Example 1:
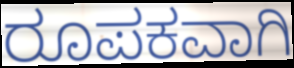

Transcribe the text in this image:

ರೂಪಕವಾಗಿ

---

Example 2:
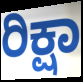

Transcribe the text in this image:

ರಿಕ್ಷಾ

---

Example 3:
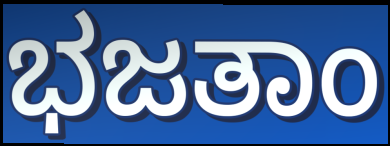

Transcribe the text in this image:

ಭಜತಾಂ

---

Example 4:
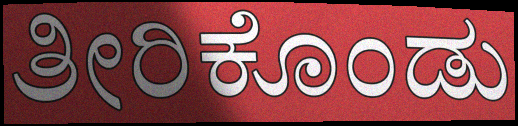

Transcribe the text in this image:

ತೀರಿಕೊಂಡು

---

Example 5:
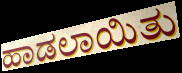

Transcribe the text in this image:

ಹಾಡಲಾಯಿತು